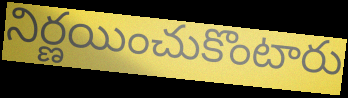
నిర్ణయించుకొంటారు